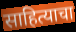
साहित्याचा